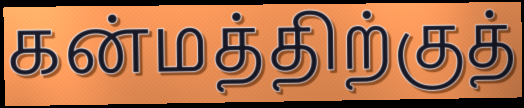
கன்மத்திற்குத்